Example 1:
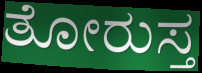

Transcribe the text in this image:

ತೋರುಸ್ತ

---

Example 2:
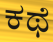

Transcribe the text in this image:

ಕಥೆ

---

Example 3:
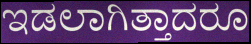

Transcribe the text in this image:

ಇಡಲಾಗಿತ್ತಾದರೂ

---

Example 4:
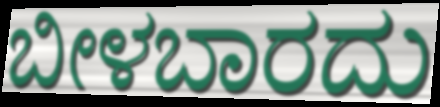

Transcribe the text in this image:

ಬೀಳಬಾರದು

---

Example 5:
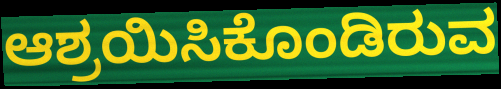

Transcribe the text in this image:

ಆಶ್ರಯಿಸಿಕೊಂಡಿರುವ